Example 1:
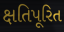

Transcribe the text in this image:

ક્ષતિપૂરિત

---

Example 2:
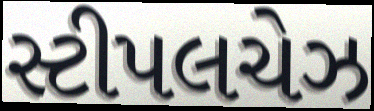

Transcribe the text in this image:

સ્ટીપલચેઝ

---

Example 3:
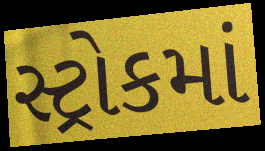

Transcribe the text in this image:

સ્ટ્રોકમાં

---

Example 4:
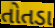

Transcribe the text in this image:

તોતડા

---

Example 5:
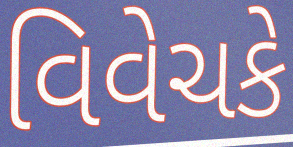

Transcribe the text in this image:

વિવેચકે